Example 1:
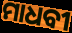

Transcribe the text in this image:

ମାଧବୀ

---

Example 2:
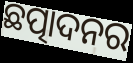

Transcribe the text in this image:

ଛତ୍ପାଦନର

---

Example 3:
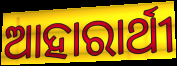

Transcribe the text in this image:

ଆହାରାର୍ଥୀ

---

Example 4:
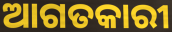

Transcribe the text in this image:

ଆଗତକାରୀ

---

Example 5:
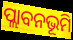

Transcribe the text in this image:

ପ୍ଲାବନଭୂମି